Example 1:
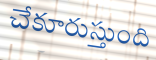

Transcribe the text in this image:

చేకూరుస్తుంది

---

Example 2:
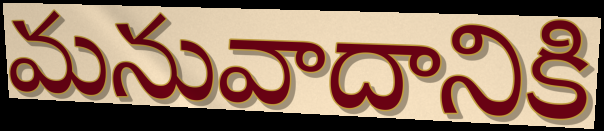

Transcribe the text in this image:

మనువాదానికి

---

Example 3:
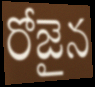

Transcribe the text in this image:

రోజైన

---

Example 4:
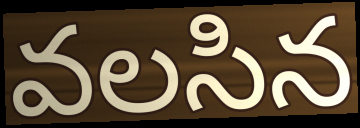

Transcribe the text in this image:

వలసిన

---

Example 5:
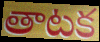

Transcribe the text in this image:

తాటక